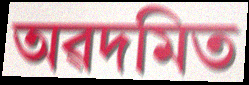
অৱদমিত